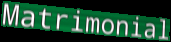
Matrimonial